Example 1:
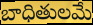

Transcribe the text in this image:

బాధితులమే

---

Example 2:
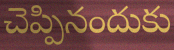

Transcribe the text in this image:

చెప్పినందుకు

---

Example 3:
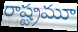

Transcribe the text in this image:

రాష్ట్రమూ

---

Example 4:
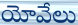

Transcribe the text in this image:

యోవేలు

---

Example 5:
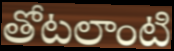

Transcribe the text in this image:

తోటలాంటి